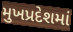
મુખપ્રદેશમાં